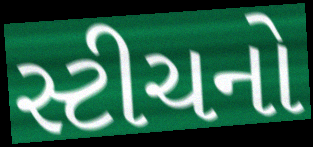
સ્ટીચનો